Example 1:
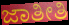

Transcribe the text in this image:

ಜಾತೀತಿ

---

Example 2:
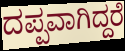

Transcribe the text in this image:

ದಪ್ಪವಾಗಿದ್ದರೆ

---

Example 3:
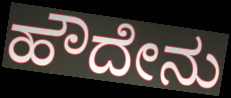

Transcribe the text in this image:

ಹೌದೇನು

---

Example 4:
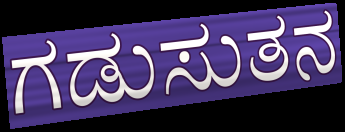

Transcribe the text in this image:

ಗಡುಸುತನ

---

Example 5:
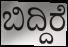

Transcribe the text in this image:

ಬಿದ್ದಿರೆ